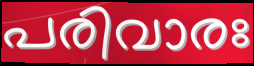
പരിവാരഃ